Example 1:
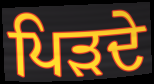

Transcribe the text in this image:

ਪਿੜਦੇ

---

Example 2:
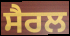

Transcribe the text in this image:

ਸੈਰਲ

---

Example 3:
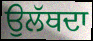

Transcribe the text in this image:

ਉਲੱਥਦਾ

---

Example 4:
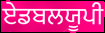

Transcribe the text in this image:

ਏਡਬਲਯੂਪੀ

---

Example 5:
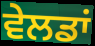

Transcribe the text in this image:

ਵੇਲਡਾਂ